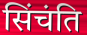
सिंचंति